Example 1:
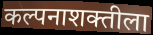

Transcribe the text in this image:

कल्पनाशक्तीला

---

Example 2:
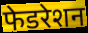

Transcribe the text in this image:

फेडरेशन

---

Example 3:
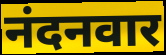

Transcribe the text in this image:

नंदनवार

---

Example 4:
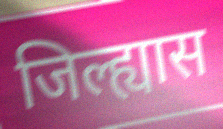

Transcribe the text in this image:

जिल्ह्यास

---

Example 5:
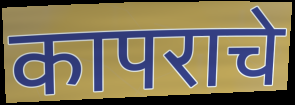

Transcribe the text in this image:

कापराचे